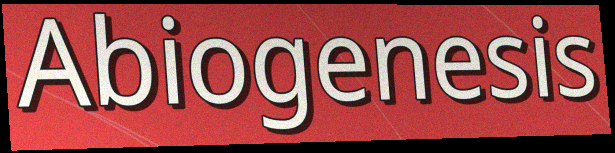
Abiogenesis